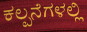
ಕಲ್ಪನೆಗಳಲ್ಲಿ